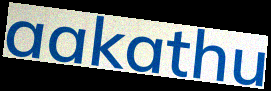
aakathu